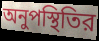
অনুপস্থিতির